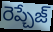
రెప్చేజ్